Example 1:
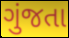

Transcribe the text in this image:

ગુંજતા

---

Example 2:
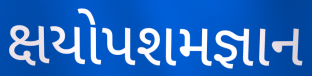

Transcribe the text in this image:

ક્ષયોપશમજ્ઞાન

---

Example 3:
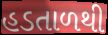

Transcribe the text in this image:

હડતાળથી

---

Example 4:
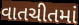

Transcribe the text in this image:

વાતચીતમાં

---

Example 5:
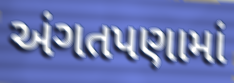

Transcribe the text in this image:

અંગતપણામાં